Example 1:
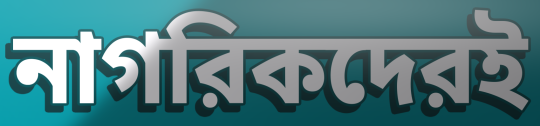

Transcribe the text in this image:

নাগরিকদেরই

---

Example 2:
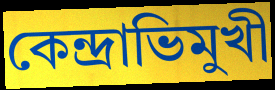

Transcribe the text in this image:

কেন্দ্রাভিমুখী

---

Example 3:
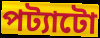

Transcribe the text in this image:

পট্যাটো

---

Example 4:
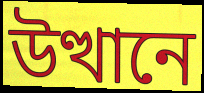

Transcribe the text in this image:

উত্থানে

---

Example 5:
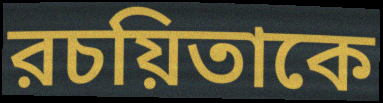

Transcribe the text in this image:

রচয়িতাকে